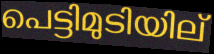
പെട്ടിമുടിയില്